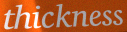
thickness